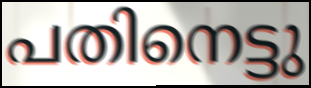
പതിനെട്ടു